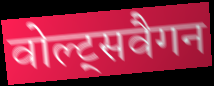
वोल्ट्सवैगन